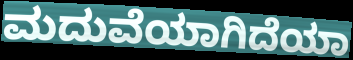
ಮದುವೆಯಾಗಿದೆಯಾ